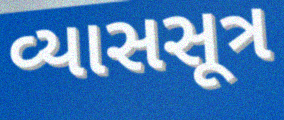
વ્યાસસૂત્ર